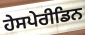
ਹੇਸਪੇਰੀਡਿਨ